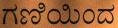
ಗಣಿಯಿಂದ